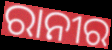
ରାନୀର